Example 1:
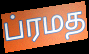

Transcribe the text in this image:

ப்ரமத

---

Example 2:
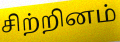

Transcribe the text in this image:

சிற்றினம்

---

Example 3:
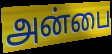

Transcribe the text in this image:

அன்பை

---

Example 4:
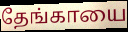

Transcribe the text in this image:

தேங்காயை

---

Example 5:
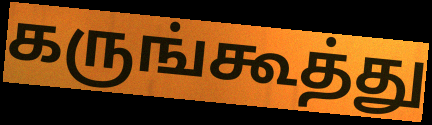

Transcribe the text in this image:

கருங்கூத்து